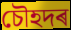
চৌহদৰ